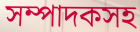
সম্পাদকসহ